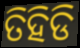
ତିହିଡି